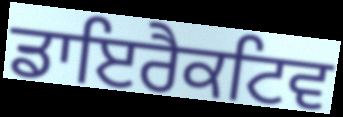
ਡਾਇਰੈਕਟਿਵ